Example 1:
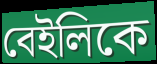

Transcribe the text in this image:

বেইলিকে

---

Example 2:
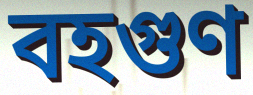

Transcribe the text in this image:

বহগুণ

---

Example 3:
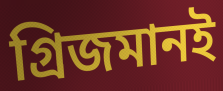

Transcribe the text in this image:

গ্রিজমানই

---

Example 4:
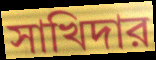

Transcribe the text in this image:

সাখিদার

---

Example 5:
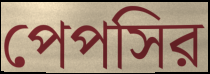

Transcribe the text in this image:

পেপসির